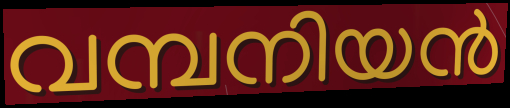
വമ്പനിയൻ